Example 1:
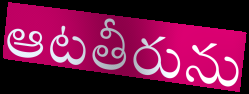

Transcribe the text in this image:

ఆటతీరును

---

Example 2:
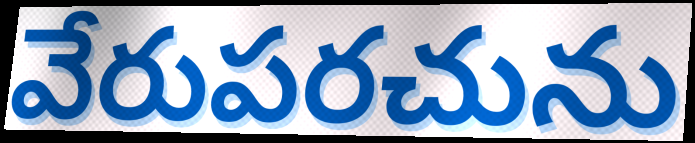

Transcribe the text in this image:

వేరుపరచును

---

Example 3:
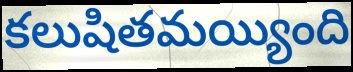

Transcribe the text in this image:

కలుషితమయ్యింది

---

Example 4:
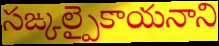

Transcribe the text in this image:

సఙ్కల్పైకాయనాని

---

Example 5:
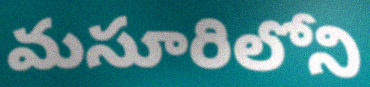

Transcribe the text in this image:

మసూరిలోని